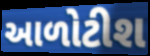
આળોટીશ